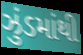
ઝુંડમાંથી